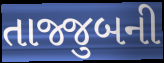
તાજ્જુબની